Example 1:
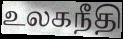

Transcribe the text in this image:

உலகநீதி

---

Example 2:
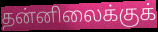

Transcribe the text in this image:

தன்னிலைக்குக்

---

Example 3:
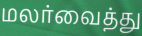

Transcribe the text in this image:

மலர்வைத்து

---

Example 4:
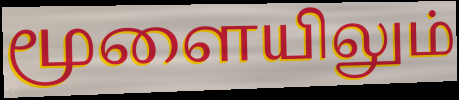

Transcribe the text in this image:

மூளையிலும்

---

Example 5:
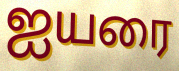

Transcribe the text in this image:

ஐயரை